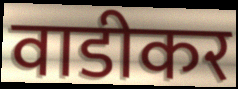
वाडीकर